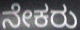
ನೇಕರು